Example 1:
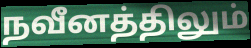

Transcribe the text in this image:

நவீனத்திலும்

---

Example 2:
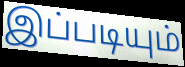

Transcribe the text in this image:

இப்படியும்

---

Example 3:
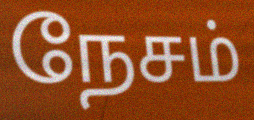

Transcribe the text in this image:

நேசம்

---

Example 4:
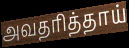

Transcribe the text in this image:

அவதரித்தாய்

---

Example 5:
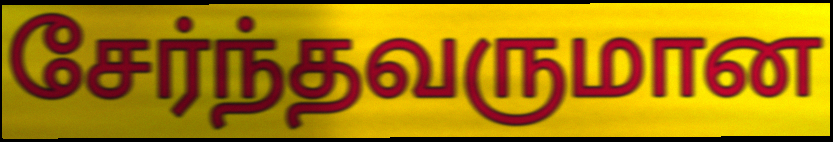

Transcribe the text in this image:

சேர்ந்தவருமான